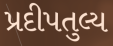
પ્રદીપતુલ્ય